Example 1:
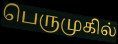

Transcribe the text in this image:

பெருமுகில்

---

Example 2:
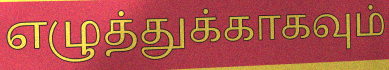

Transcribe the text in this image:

எழுத்துக்காகவும்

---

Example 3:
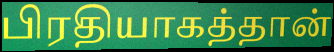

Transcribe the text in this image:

பிரதியாகத்தான்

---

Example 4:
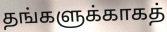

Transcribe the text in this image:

தங்களுக்காகத்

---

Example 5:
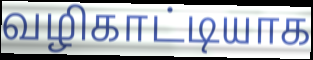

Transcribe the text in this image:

வழிகாட்டியாக